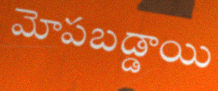
మోపబడ్డాయి